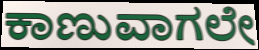
ಕಾಣುವಾಗಲೇ